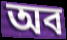
অব